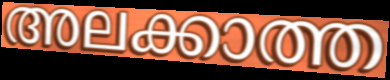
അലക്കാത്ത